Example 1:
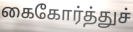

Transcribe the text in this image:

கைகோர்த்துச்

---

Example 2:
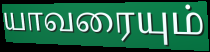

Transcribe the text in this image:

யாவரையும்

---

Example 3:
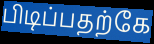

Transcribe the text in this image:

பிடிப்பதற்கே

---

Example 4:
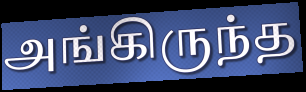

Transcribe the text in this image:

அங்கிருந்த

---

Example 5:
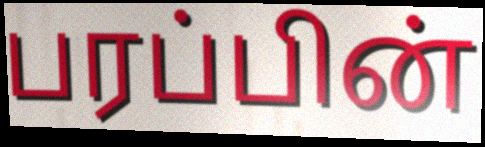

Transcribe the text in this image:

பரப்பின்